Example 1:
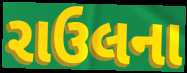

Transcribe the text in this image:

રાઉલના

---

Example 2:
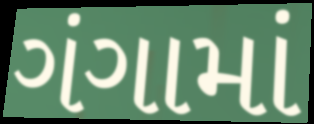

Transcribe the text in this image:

ગંગામાં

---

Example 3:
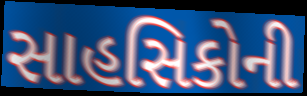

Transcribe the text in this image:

સાહસિકોની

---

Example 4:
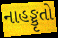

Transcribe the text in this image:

નાહઙ્કૃતો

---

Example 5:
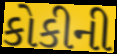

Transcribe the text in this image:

કોકીની